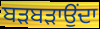
ਬੜਬੜਾਉਂਦਾ